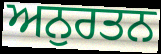
ਅਨੁਰਤਨ